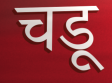
चडू